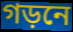
গড়নে